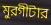
মুরগীটার